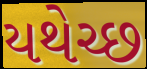
યથેચ્છ